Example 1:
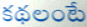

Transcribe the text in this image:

కథలంటే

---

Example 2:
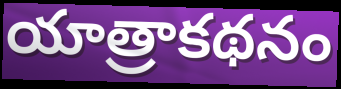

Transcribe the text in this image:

యాత్రాకథనం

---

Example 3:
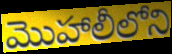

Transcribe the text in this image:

మొహాలీలోని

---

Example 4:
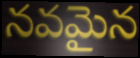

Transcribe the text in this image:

నవమైన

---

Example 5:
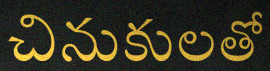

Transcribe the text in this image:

చినుకులతో